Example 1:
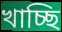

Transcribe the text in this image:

খাচ্ছি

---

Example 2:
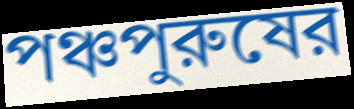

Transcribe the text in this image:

পঞ্চপুরুষের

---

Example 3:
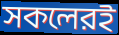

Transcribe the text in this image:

সকলেরই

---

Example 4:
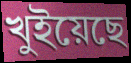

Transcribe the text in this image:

খুইয়েছে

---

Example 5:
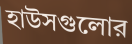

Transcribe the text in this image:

হাউসগুলোর